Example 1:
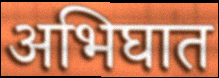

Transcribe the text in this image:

अभिघात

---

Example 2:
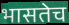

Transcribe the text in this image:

भासतेच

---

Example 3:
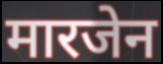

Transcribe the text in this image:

मारजेन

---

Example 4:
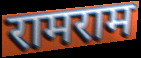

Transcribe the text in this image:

रामराम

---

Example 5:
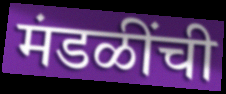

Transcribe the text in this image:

मंडळींची